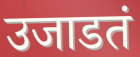
उजाडतं